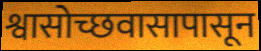
श्वासोच्छवासापासून